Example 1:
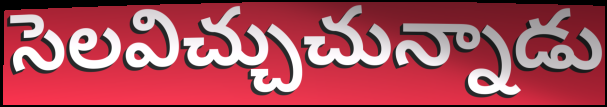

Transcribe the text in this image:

సెలవిచ్చుచున్నాడు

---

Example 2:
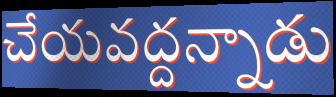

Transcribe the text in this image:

చేయవద్దన్నాడు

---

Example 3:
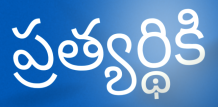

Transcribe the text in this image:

ప్రత్యర్థికి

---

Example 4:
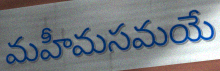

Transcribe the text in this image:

మహీమసమయే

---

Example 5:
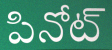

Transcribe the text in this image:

పినోట్